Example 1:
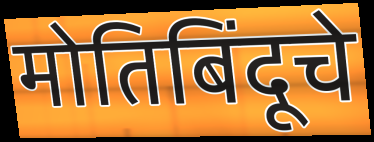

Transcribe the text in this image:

मोतिबिंदूचे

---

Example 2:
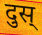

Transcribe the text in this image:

दुस्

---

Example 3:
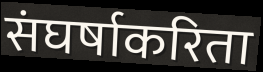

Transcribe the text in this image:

संघर्षाकरिता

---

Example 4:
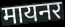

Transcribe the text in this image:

मायनर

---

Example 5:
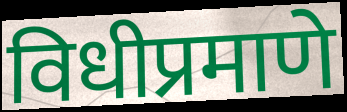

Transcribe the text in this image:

विधीप्रमाणे